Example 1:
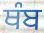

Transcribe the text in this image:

ਥੰਬ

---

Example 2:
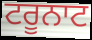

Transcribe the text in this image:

ਟਰੂਨਾਟ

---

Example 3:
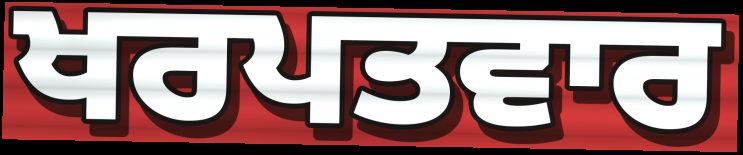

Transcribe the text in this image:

ਖਰਪਤਵਾਰ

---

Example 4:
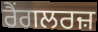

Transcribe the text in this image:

ਰੈਂਗਲਰਜ਼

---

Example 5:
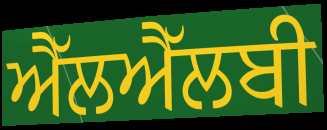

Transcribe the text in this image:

ਐੱਲਐੱਲਬੀ